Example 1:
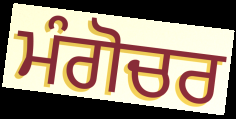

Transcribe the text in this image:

ਮੰਗੋਚਰ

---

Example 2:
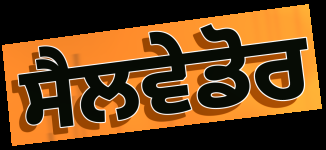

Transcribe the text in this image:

ਸੈਲਵੇਡੋਰ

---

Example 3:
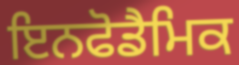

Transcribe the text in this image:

ਇਨਫੋਡੈਮਿਕ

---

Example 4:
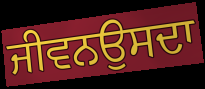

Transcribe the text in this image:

ਜੀਵਨਉਸਦਾ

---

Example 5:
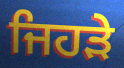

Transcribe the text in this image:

ਜਿਹਡ਼ੇ